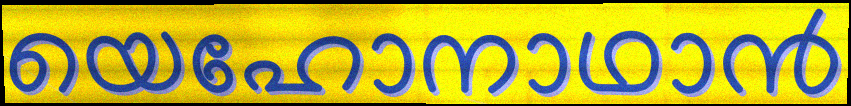
യെഹോനാഥാൻ